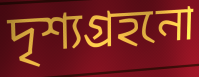
দৃশ্যগ্ৰহনো